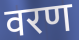
वरण